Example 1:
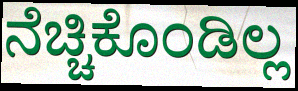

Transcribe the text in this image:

ನೆಚ್ಚಿಕೊಂಡಿಲ್ಲ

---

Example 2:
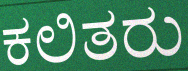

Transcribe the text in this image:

ಕಲಿತರು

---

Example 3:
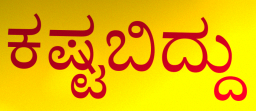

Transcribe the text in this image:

ಕಷ್ಟಬಿದ್ದು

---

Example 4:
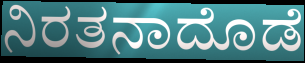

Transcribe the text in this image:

ನಿರತನಾದೊಡೆ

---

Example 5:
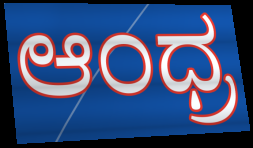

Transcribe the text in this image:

ಆಂಧ್ರ